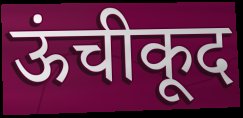
ऊंचीकूद